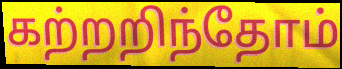
கற்றறிந்தோம்